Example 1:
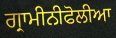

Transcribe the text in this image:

ਗ੍ਰਾਮੀਨੀਫੋਲੀਆ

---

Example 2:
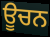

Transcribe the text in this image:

ਊਚਨ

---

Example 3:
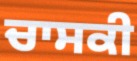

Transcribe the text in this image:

ਚਾਸਕੀ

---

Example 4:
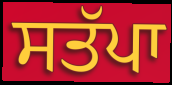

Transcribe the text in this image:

ਸਤੱਪਾ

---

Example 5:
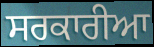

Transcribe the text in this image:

ਸਰਕਾਰੀਆ